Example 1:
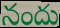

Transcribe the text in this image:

నందు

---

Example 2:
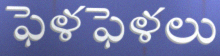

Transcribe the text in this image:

ఫెళఫెళలు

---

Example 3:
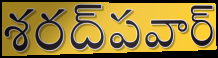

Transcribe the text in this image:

శరద్‌పవార్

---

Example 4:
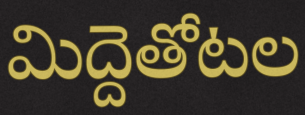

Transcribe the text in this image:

మిద్దెతోటల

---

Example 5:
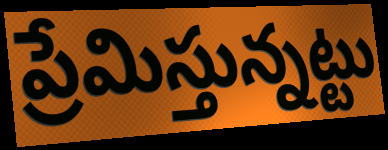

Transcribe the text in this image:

ప్రేమిస్తున్నట్టు